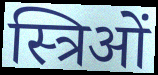
स्त्रिओं